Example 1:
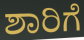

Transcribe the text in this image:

ಶಾರಿಗೆ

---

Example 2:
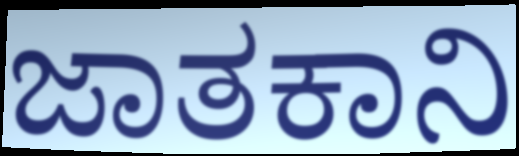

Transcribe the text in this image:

ಜಾತಕಾನಿ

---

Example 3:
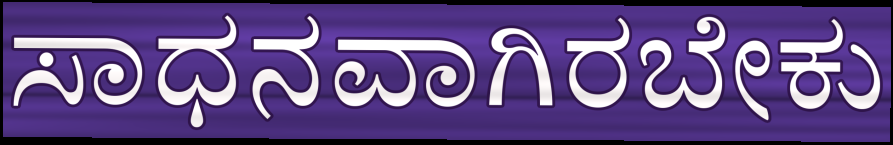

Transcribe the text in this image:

ಸಾಧನವಾಗಿರಬೇಕು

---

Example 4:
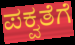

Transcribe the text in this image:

ಪಕ್ವತೆಗೆ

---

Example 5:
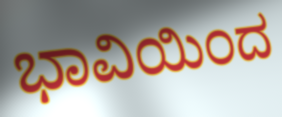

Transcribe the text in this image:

ಭಾವಿಯಿಂದ